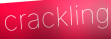
crackling